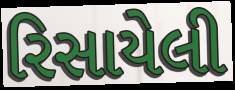
રિસાયેલી